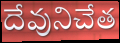
దేవునిచేత